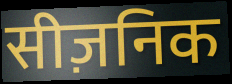
सीज़निक